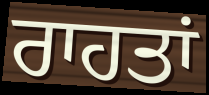
ਰਾਹਤਾਂ